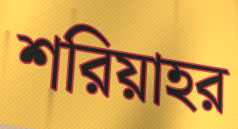
শরিয়াহর